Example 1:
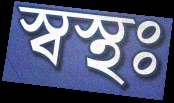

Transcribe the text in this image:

স্বস্থঃ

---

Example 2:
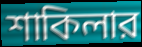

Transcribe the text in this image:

শাকিলার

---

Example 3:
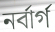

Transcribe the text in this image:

নর্বার্গ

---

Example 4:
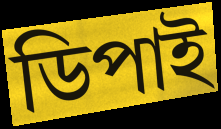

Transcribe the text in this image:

ডিপাই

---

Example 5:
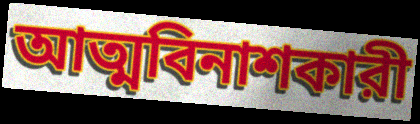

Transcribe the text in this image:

আত্মবিনাশকারী